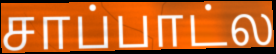
சாப்பாட்ல